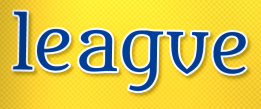
league